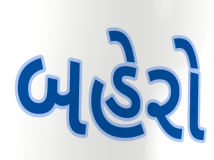
બહેરો